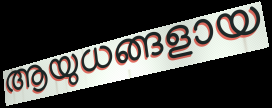
ആയുധങ്ങളായ